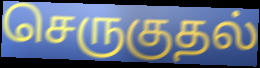
செருகுதல்